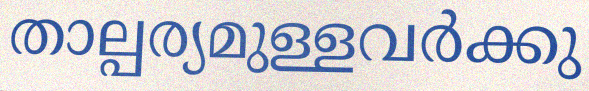
താല്പര്യമുള്ളവർക്കു